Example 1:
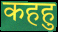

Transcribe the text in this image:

कहहु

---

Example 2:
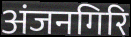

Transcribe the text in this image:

अंजनगिरि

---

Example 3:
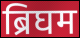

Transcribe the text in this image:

ब्रिघम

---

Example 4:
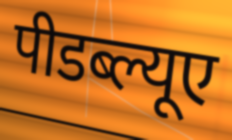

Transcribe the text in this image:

पीडब्ल्यूए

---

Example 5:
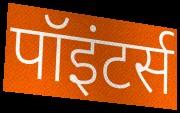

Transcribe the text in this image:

पॉइंटर्स